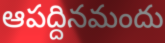
ఆపద్దినమందు